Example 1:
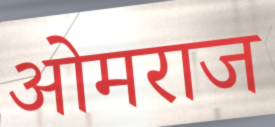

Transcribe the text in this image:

ओमराज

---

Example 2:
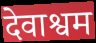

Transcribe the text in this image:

देवाश्वम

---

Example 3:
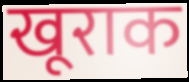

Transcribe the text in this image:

खूराक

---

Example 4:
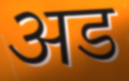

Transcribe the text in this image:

अड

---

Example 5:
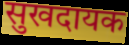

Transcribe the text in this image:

सुखदायक